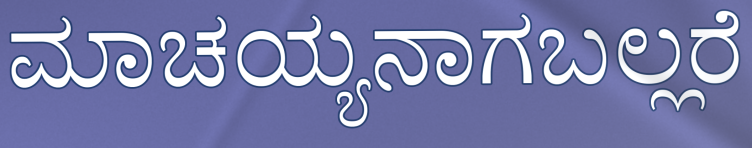
ಮಾಚಯ್ಯನಾಗಬಲ್ಲರೆ